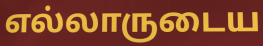
எல்லாருடைய